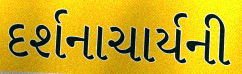
દર્શનાચાર્યની